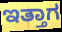
ಇತ್ತಾಗ